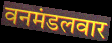
वनमंडलवार